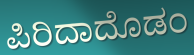
ಪಿರಿದಾದೊಡಂ